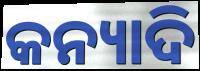
କନ୍ୟାଦି